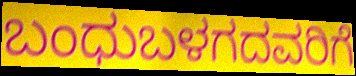
ಬಂಧುಬಳಗದವರಿಗೆ